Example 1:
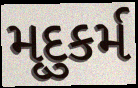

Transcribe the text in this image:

મૃદુકર્મ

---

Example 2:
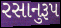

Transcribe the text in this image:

રસાનુરૂપ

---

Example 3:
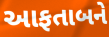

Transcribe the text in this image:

આફતાબને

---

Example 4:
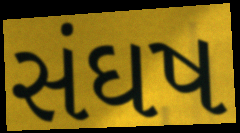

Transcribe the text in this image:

સંઘષ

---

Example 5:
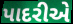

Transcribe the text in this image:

પાદરીએ